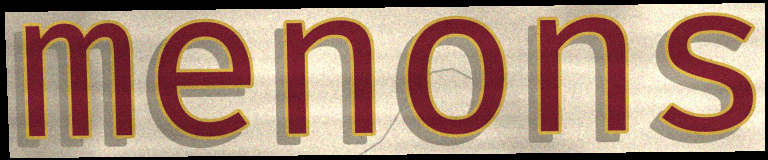
menons